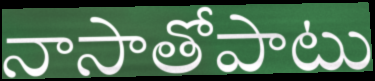
నాసాతోపాటు